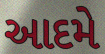
આદમે